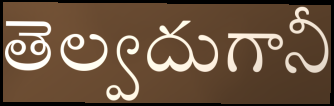
తెల్వదుగానీ